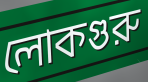
লোকগুরু